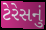
ટેરેસનું